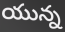
యున్న